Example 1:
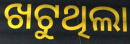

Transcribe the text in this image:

ଖଟୁଥିଲା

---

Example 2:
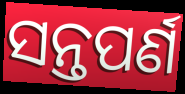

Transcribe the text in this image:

ସନ୍ତପର୍ଣ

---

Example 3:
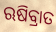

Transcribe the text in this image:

ଋଷିବ୍ରାତ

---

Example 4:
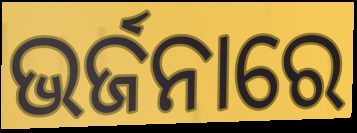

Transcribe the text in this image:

ଭର୍ଜନାରେ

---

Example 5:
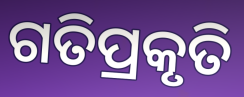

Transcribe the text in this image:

ଗତିପ୍ରକୃତି